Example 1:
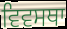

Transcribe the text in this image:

ਵਿਵਸਥਾ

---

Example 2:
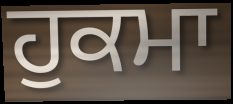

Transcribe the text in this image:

ਹੁਕਮਾ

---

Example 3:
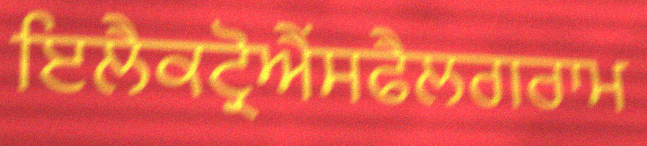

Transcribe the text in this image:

ਇਲੈਕਟ੍ਰੋਐਂਸਫੈਲਗਰਾਮ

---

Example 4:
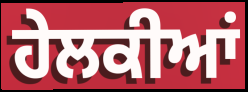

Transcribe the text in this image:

ਹੇਲਕੀਆਂ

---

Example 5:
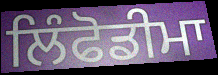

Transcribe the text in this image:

ਲਿੰਫੋਡੀਮਾ